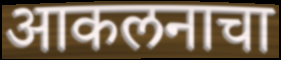
आकलनाचा